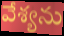
వేశ్యను